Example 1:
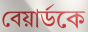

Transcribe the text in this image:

বেয়ার্ডকে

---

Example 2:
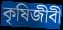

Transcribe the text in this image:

কৃষিজীবী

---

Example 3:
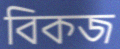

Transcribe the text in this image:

বিকজ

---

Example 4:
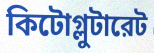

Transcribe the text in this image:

কিটোগ্লুটারেট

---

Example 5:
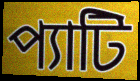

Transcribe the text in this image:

প্যাটি